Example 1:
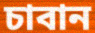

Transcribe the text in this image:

চাবান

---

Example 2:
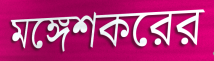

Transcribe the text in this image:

মঙ্গেশকরের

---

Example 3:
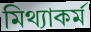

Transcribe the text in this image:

মিথ্যাকর্ম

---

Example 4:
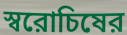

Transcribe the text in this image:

স্বরোচিষের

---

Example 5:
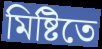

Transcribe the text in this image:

মিষ্টিতে